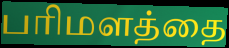
பரிமளத்தை